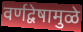
वर्णद्वेषामुळे